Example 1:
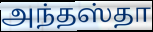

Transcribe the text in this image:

அந்தஸ்தா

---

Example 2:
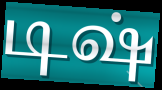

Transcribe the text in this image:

டிஷ்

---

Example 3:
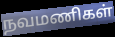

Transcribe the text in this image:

நவமணிகள்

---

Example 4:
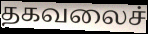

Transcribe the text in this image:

தகவலைச்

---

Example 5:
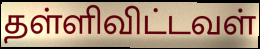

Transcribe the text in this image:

தள்ளிவிட்டவள்